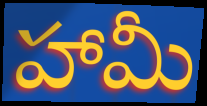
హామీ